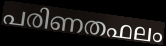
പരിണതഫലം